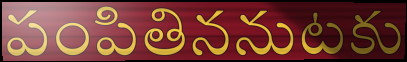
పంపితిననుటకు